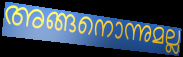
അങ്ങനൊന്നുമല്ല